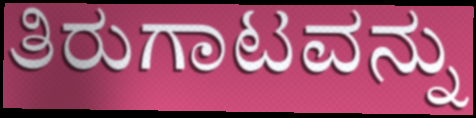
ತಿರುಗಾಟವನ್ನು